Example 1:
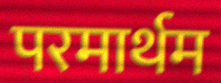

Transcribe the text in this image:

परमार्थम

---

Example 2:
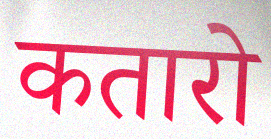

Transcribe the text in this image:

कतारो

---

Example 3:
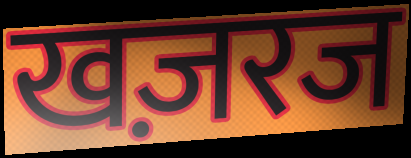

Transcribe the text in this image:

खज़रज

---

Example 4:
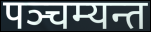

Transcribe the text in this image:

पञ्चम्यन्त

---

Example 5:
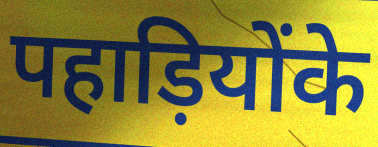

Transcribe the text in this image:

पहाड़ियोंके